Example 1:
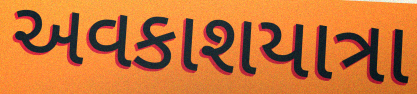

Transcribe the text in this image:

અવકાશયાત્રા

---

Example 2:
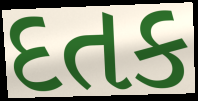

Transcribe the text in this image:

દતક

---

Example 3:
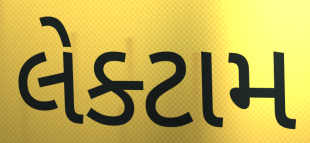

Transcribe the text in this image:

લેક્ટામ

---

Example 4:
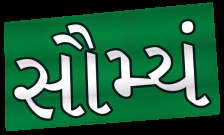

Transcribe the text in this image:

સૌમ્યં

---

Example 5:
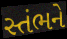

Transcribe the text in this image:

સ્તંભને